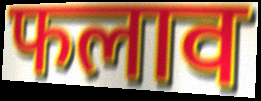
फलाव